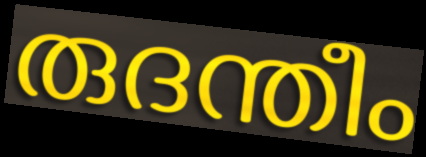
രുദന്തീം